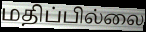
மதிப்பில்லை